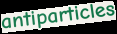
antiparticles